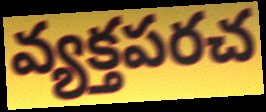
వ్యక్తపరచ